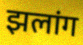
झलांग